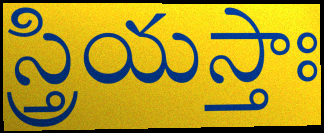
స్త్రియస్తాః